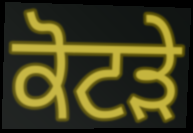
ਕੋਟੜੇ